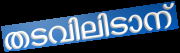
തടവിലിടാന്